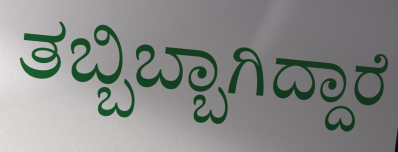
ತಬ್ಬಿಬ್ಬಾಗಿದ್ದಾರೆ